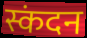
स्कंदन